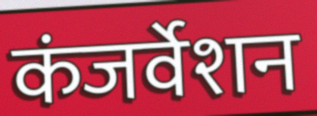
कंजर्वेशन